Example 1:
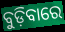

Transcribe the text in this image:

ବୁଡ଼ିବାରେ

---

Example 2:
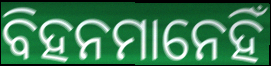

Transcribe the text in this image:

ବିହନମାନେହିଁ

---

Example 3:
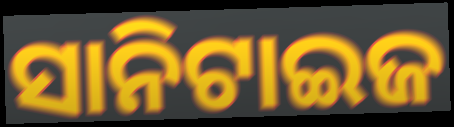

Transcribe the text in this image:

ସାନିଟାଇଜ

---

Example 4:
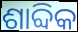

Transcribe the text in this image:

ଶାବ୍ଦିକ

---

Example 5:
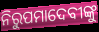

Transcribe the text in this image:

ନିରୁପମାଦେବୀଙ୍କୁ